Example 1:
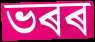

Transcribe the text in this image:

ভৰৰ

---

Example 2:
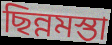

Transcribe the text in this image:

ছিন্নমস্তা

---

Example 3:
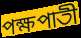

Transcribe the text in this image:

পক্ষপাতী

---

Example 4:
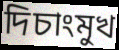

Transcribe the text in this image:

দিচাংমুখ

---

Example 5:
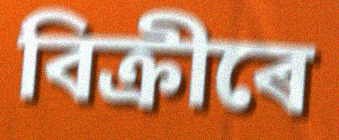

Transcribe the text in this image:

বিক্ৰীৰে